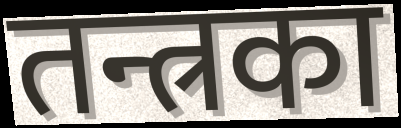
तन्त्रका